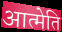
आत्मेति